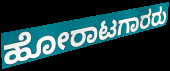
ಹೋರಾಟಗಾರರು